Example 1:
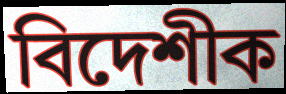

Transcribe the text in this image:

বিদেশীক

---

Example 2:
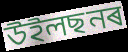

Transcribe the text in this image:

উইলছনৰ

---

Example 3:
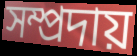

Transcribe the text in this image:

সম্প্ৰদায়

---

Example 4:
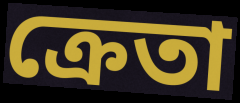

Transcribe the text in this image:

ক্ৰেতা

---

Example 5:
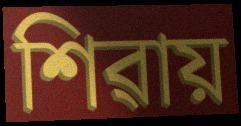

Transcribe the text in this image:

শিৱায়